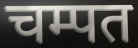
चम्पत